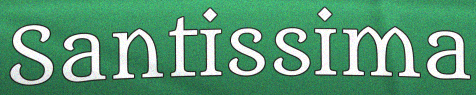
Santissima